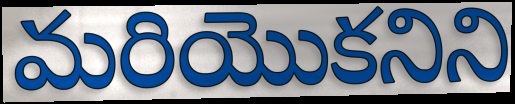
మరియొకనిని